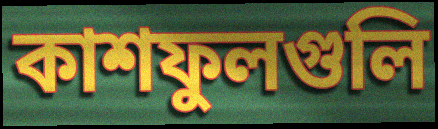
কাশফুলগুলি